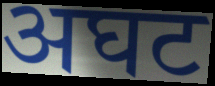
अघट